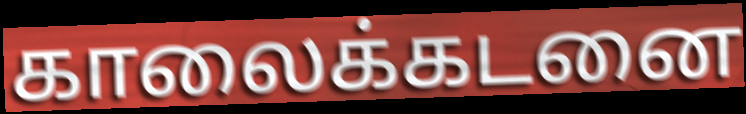
காலைக்கடனை